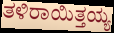
ತಳಿರಾಯಿತ್ತಯ್ಯ